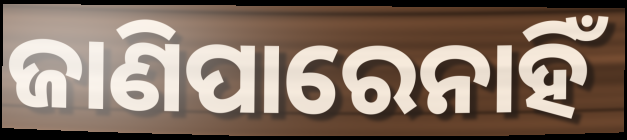
ଜାଣିପାରେନାହିଁ